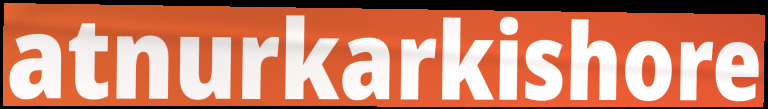
atnurkarkishore